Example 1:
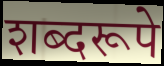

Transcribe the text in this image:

शब्दरूपे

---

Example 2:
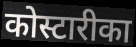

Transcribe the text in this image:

कोस्टारीका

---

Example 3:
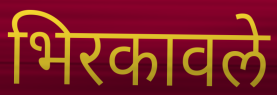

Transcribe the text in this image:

भिरकावले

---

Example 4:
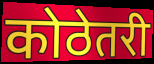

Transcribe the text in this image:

कोठेतरी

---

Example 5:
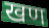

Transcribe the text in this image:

खण